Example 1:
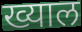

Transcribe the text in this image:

ख्याल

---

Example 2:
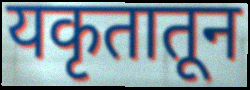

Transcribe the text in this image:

यकृतातून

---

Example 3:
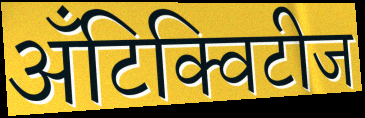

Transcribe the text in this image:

अँटिक्विटीज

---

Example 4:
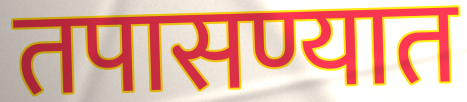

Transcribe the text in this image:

तपासण्यात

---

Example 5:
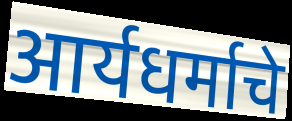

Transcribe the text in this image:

आर्यधर्माचे